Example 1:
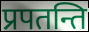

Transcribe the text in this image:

प्रपतन्ति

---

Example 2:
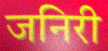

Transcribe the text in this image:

जनिरी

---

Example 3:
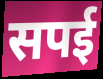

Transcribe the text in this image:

सपई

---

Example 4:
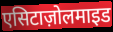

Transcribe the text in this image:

एसिटाज़ोलमाइड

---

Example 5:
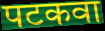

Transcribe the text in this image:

पटकवा